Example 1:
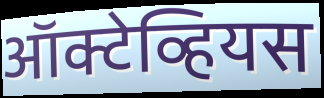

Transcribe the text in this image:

ऑक्टेव्हियस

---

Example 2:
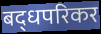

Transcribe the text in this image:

बद्धपरिकर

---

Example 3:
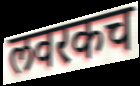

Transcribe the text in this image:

लवरकच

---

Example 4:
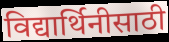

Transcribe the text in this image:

विद्यार्थिनीसाठी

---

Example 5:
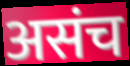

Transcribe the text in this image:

असंच